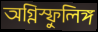
অগ্নিস্ফুলিঙ্গ